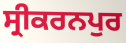
ਸ੍ਰੀਕਰਨਪੁਰ